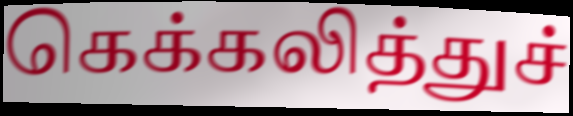
கெக்கலித்துச்